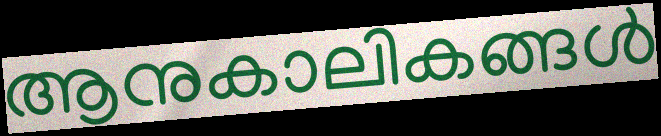
ആനുകാലികങ്ങൾ